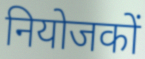
नियोजकों